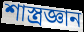
শাস্ত্রজ্ঞান